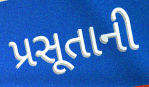
પ્રસૂતાની